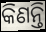
କିଣନ୍ତି